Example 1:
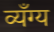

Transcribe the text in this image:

व्यँग्य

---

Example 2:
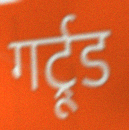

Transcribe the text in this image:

गर्ट्रूड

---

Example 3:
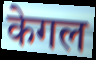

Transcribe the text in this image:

केगल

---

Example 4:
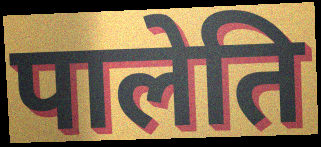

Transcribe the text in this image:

पालेति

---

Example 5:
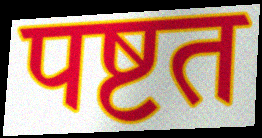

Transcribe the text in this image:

पष्टत